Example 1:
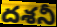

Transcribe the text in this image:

దశనీ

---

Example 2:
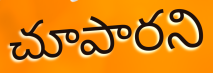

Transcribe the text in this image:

చూపారని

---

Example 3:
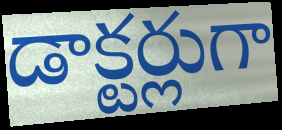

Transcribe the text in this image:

డాక్టర్లుగా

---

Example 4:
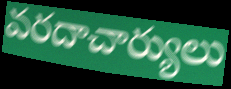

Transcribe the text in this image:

వరదాచార్యులు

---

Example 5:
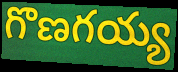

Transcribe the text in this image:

గొణగయ్య